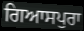
ਗਿਆਸਪੁਰਾ